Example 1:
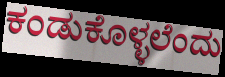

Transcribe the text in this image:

ಕಂಡುಕೊಳ್ಳಲೆಂದು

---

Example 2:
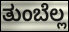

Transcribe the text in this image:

ತುಂಬೆಲ್ಲ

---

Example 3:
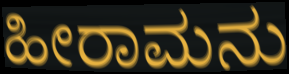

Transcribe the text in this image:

ಹೀರಾಮನು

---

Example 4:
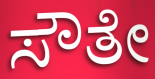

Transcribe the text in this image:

ಸೌತೇ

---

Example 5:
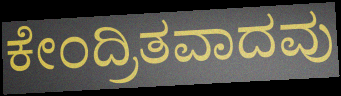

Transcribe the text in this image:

ಕೇಂದ್ರಿತವಾದವು